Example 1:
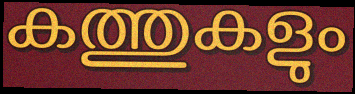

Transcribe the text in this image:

കത്തുകളും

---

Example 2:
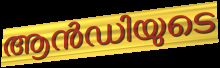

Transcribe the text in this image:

ആൻഡിയുടെ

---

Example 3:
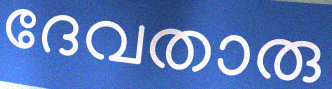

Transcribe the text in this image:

ദേവതാരു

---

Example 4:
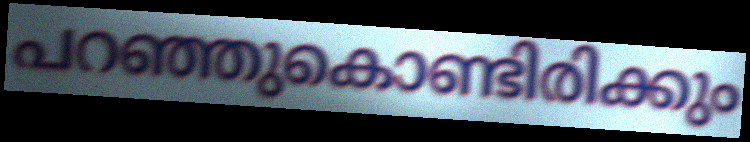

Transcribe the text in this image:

പറഞ്ഞുകൊണ്ടിരിക്കും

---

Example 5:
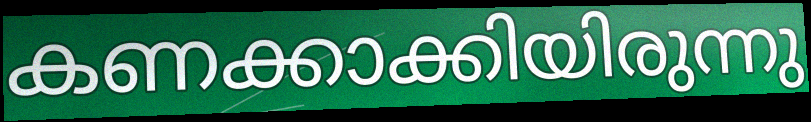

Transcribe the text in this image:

കണക്കാക്കിയിരുന്നു